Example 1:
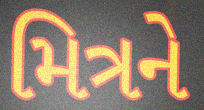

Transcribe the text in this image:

મિત્રને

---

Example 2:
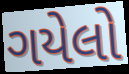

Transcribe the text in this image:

ગયેલો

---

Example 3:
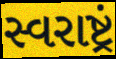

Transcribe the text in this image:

સ્વરાષ્ટ્રં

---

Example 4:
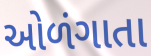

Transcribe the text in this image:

ઓળંગાતા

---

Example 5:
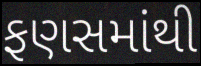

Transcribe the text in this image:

ફણસમાંથી